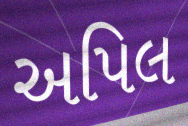
અપિલ